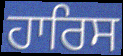
ਹਾਰਿਸ